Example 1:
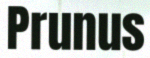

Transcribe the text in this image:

Prunus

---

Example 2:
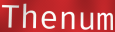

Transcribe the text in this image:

Thenum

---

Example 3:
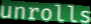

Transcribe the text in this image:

unrolls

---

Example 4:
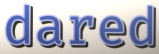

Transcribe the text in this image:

dared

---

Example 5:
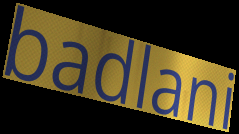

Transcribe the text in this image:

badlani